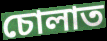
চোলাত